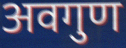
अवगुण